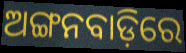
ଅଙ୍ଗନବାଡ଼ିରେ